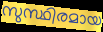
സുസ്ഥിരമായ